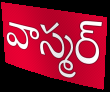
వాస్మర్